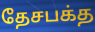
தேசபக்த